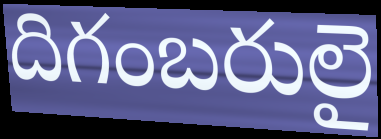
దిగంబరులై